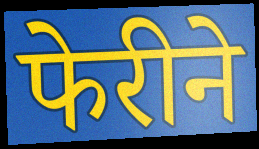
फेरीने